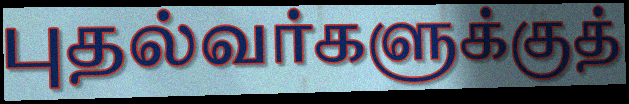
புதல்வர்களுக்குத்